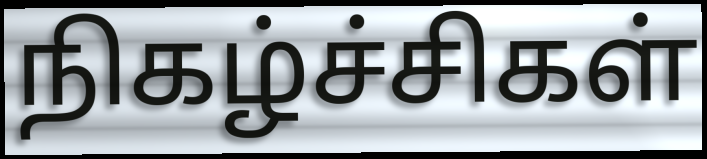
நிகழ்ச்சிகள்